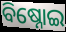
ବିଷ୍ନୋଇ